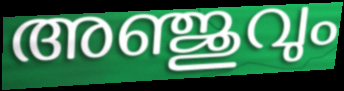
അഞ്ജുവും